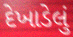
દેખાડેલું